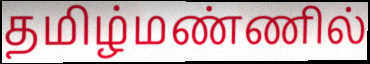
தமிழ்மண்ணில்